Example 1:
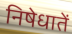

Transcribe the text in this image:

निषेधातें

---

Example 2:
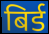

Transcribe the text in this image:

बिर्ड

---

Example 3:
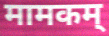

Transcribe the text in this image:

मामकम्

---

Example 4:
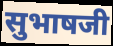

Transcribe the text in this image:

सुभाषजी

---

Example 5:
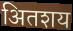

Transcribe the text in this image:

अितशय